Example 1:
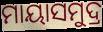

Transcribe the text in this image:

ମାୟାସମୁଦ୍ର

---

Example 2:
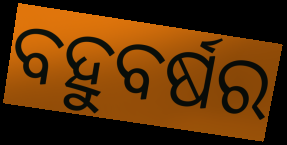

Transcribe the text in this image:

ବହୁବର୍ଷର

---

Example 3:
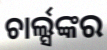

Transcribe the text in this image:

ଚାର୍ଲ୍ସଙ୍କର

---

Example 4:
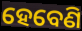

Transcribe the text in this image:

ହେବେଣି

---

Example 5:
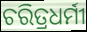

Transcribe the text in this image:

ଚରିତ୍ରଧର୍ମୀ